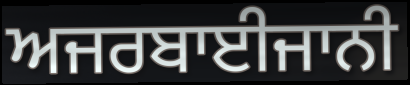
ਅਜਰਬਾਈਜਾਨੀ